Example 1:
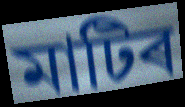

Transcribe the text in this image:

মাটিৰ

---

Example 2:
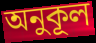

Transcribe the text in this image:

অনুকূল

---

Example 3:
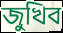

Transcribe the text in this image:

জুখিব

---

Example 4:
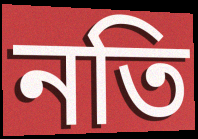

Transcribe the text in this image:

নতি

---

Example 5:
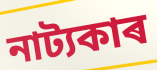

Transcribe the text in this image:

নাট্যকাৰ